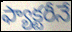
ఫ్యాక్టరీనే